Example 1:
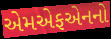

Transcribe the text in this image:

એમએફએનનો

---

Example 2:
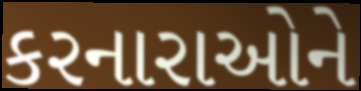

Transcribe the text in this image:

કરનારાઓને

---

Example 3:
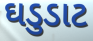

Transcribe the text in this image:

ઘડુડાટ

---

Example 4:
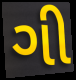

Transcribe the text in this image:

ગી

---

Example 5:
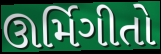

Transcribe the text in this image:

ઊર્મિગીતો